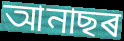
আনাছৰ